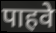
पाहवे